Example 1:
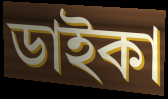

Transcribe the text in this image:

ডাইকা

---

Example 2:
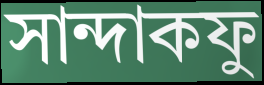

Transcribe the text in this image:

সান্দাকফু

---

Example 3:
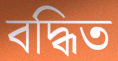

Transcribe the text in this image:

বদ্ধিত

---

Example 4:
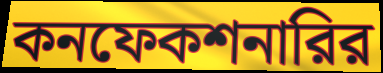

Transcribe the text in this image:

কনফেকশনারির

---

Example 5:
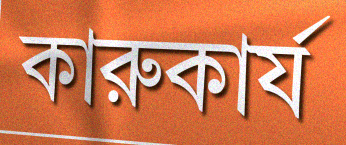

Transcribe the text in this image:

কারুকার্য